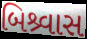
બિશ્ર્વાસ